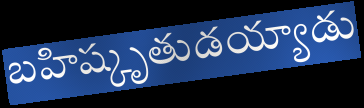
బహిష్కృతుడయ్యాడు